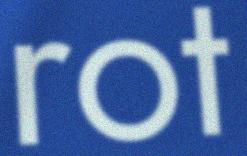
rot